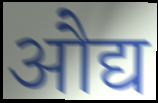
औद्य